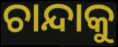
ଚାନ୍ଦାକୁ